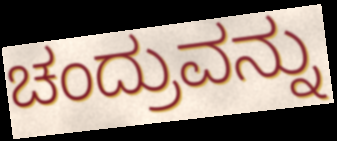
ಚಂದ್ರುವನ್ನು